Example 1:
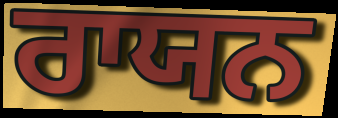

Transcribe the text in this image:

ਰਾਯਨ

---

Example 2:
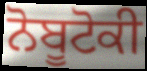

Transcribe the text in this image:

ਨੋਬੂਟੋਕੀ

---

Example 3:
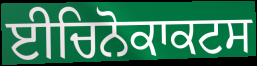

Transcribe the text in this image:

ਈਚਿਨੋਕਾਕਟਸ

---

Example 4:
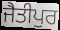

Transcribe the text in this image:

ਜੈਤੀਪੁਰ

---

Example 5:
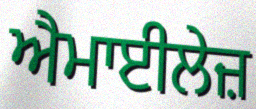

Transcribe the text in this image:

ਐਮਾਈਲੇਜ਼